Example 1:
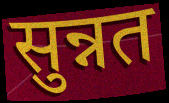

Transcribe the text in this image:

सुन्नत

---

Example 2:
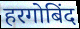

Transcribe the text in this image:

हरगोबिंद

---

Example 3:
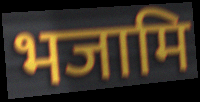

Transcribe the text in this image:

भजामि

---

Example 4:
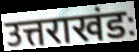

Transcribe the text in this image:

उत्तराखंडः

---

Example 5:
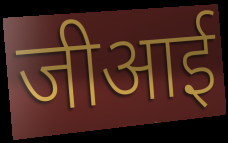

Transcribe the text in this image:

जीआई